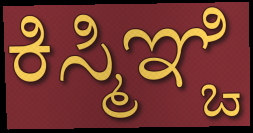
ಕಿಸ್ಮಿಞ್ಚಿ